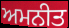
ਅਮਨੀਤ